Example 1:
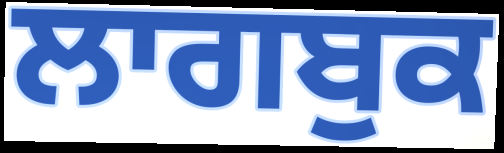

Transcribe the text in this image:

ਲਾਗਬੁਕ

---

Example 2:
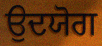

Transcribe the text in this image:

ਉਦਯੋਗ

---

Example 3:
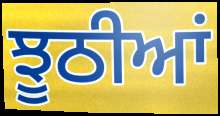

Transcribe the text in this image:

ਝੂਠੀਆਂ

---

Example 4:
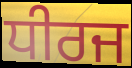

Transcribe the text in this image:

ਧੀਰਜ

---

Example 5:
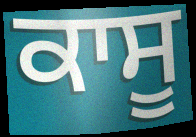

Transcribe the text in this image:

ਕਾਸੂ